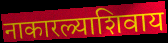
नाकारल्याशिवाय